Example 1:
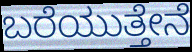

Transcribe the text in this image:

ಬರೆಯುತ್ತೇನೆ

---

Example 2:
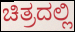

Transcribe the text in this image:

ಚಿತ್ರದಲ್ಲಿ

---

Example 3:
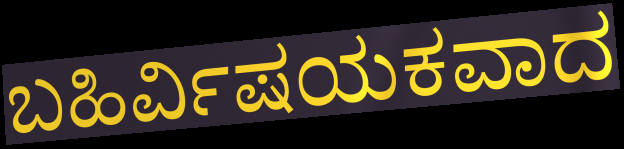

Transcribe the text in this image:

ಬಹಿರ್ವಿಷಯಕವಾದ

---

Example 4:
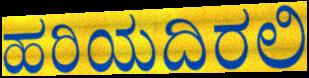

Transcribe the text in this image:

ಹರಿಯದಿರಲಿ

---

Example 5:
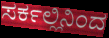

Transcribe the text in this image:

ಸರ್ಕಲ್ಲಿನಿಂದ